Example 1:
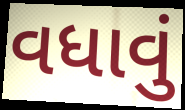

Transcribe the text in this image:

વધાવું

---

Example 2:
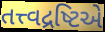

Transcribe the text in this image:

તત્ત્વદ્રષ્ટિએ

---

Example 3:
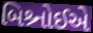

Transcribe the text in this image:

બિશ્ર્નોઈએ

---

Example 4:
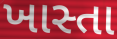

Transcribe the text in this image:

ખાસ્તા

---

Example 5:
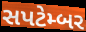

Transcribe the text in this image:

સપટેમ્બર